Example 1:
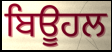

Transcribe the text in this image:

ਬਿਊਹਲ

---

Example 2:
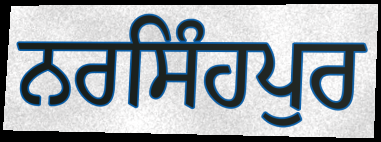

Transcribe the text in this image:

ਨਰਸਿੰਹਪੁਰ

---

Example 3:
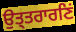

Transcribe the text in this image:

ਉਤ੍ਤਰਾਰਣਿਂ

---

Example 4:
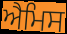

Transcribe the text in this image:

ਐਮਿਸ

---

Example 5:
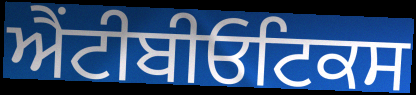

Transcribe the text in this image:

ਐਂਟੀਬੀਓਟਿਕਸ